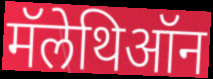
मॅलेथिऑन